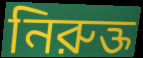
নিরুক্ত